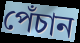
পেঁচান